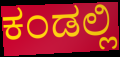
ಕಂಡಲ್ಲಿ